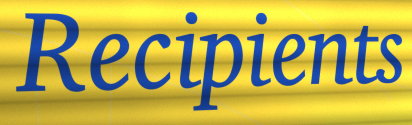
Recipients